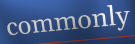
commonly